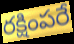
రక్షింపరే